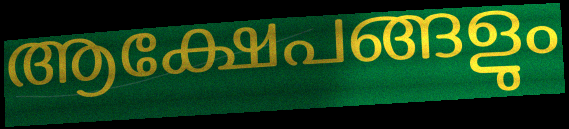
ആക്ഷേപങ്ങളും